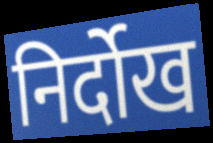
निर्दोख